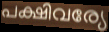
പക്ഷിവര്യേ